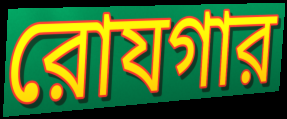
রোযগার